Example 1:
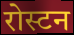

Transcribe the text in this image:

रोस्टन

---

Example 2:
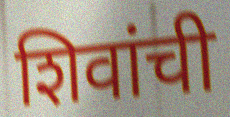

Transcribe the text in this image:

शिवांची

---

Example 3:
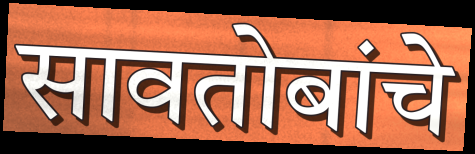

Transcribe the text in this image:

सावतोबांचे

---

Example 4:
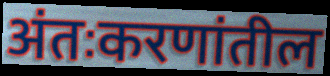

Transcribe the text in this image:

अंतःकरणांतील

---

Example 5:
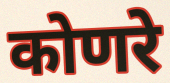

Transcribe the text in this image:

कोणरे